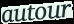
autour